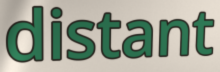
distant